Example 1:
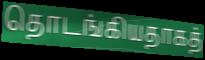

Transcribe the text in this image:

தொடங்கியதாகத்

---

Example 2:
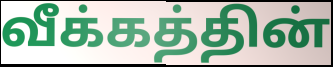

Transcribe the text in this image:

வீக்கத்தின்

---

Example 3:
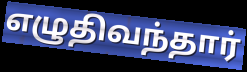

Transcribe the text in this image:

எழுதிவந்தார்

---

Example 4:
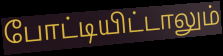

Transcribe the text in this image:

போட்டியிட்டாலும்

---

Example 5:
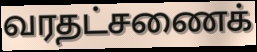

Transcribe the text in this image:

வரதட்சணைக்